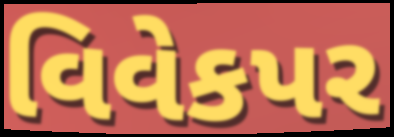
વિવેકપર